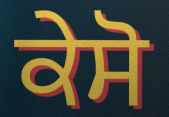
ਕੇਸੋ